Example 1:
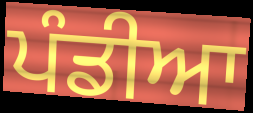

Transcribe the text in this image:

ਪੰਡੀਆ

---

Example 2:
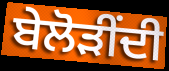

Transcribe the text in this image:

ਬੇਲੋੜੀਂਦੀ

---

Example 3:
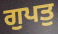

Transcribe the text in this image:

ਗੁਪਤੁ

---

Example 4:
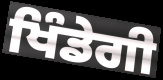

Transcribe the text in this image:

ਖਿੰਡੇਗੀ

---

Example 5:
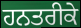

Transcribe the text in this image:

ਹਨਤਰੀਕੇ